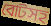
বোটসহ